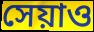
সেয়াও